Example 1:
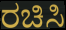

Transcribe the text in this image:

ರಚಿಸಿ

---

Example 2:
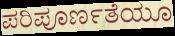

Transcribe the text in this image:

ಪರಿಪೂರ್ಣತೆಯೂ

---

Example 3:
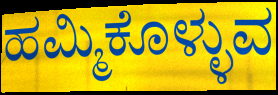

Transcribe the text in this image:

ಹಮ್ಮಿಕೊಳ್ಳುವ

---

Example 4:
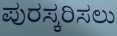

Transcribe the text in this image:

ಪುರಸ್ಕರಿಸಲು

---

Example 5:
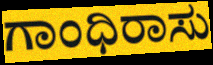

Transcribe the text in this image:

ಗಾಂಧಿರಾಸು